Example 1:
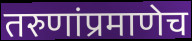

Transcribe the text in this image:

तरुणांप्रमाणेच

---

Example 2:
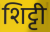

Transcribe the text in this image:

शिट्टी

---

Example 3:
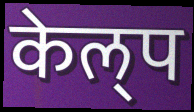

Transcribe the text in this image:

केल्प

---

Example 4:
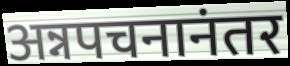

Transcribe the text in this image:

अन्नपचनानंतर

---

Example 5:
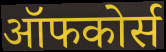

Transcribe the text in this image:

ऑफकोर्स